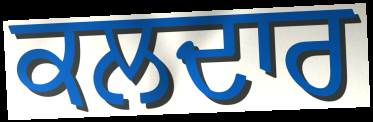
ਕਲਦਾਰ